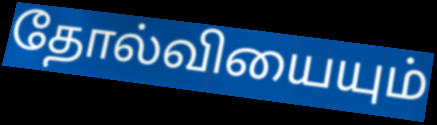
தோல்வியையும்